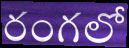
రంగలో